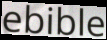
ebible